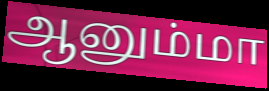
ஆனும்மா